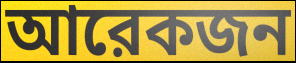
আরেকজন